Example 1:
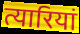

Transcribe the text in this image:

त्यारियां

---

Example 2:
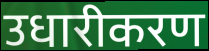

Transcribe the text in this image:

उधारीकरण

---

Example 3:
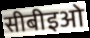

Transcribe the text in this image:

सीबीइओ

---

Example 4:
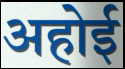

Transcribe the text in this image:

अहोई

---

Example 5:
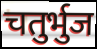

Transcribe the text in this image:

चतुर्भुज